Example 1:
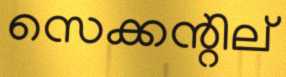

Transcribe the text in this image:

സെക്കന്റില്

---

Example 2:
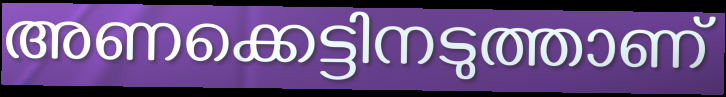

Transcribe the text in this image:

അണക്കെട്ടിനടുത്താണ്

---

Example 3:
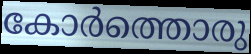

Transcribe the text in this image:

കോർത്തൊരു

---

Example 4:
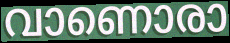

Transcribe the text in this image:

വാണൊരാ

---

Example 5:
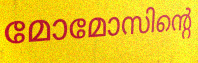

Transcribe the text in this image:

മോമോസിന്റെ